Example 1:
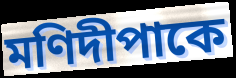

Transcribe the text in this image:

মণিদীপাকে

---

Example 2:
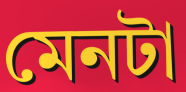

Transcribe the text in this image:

মেনটা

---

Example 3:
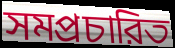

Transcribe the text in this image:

সমপ্রচারিত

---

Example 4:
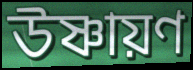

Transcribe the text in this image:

উষ্ণায়ণ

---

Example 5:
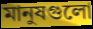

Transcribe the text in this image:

মানুষগুলো